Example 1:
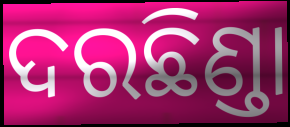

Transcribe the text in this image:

ଦରଛିଣ୍ଡା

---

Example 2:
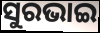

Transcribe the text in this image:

ସୁରଭାଇ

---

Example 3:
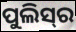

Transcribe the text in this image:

ପୁଲିସ୍‍ର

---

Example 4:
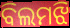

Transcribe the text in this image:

ବିଲମଝି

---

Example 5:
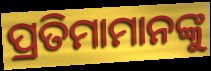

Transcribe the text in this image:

ପ୍ରତିମାମାନଙ୍କୁ